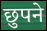
छुपने